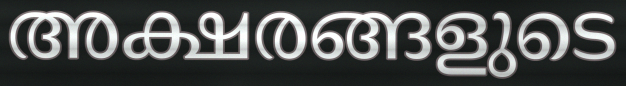
അക്ഷരങ്ങളുടെ